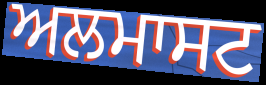
ਅਲਮਾਸਟ